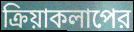
ক্রিয়াকলাপের